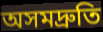
অসমদ্রুতি